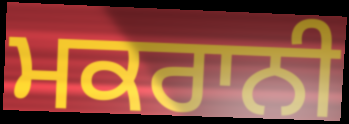
ਮਕਰਾਨੀ